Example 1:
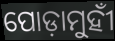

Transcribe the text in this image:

ପୋଡ଼ାମୁହୀଁ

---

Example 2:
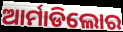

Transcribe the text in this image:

ଆର୍ମାଡିଲୋର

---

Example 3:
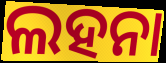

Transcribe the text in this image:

ଲହନା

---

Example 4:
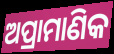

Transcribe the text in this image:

ଅପ୍ରାମାଣିକ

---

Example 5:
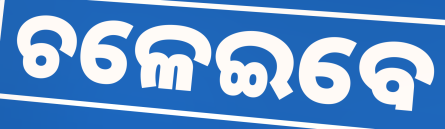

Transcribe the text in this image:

ଚଳେଇବେ